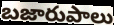
బజారుపాలు